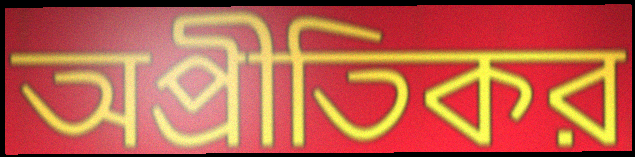
অপ্রীতিকর